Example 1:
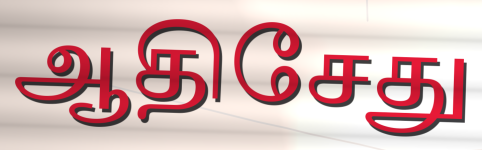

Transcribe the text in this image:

ஆதிசேது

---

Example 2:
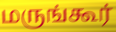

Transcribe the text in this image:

மருங்கூர்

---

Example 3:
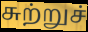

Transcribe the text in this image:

சுற்றுச்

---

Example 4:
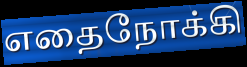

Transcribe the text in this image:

எதைநோக்கி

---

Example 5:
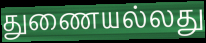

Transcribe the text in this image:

துணையல்லது